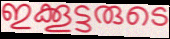
ഇക്കൂട്ടരുടെ